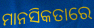
ମାନସିକତାରେ